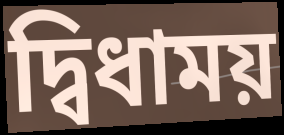
দ্বিধাময়